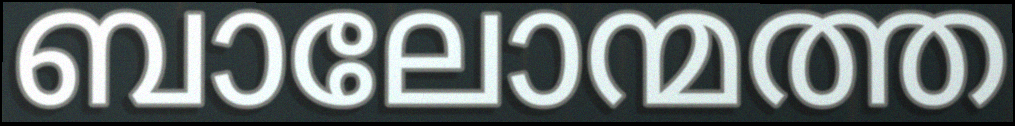
ബാലോന്മത്ത